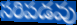
సరిపడవు